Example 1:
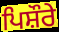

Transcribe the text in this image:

ਪਿਸ਼ੌਰੇ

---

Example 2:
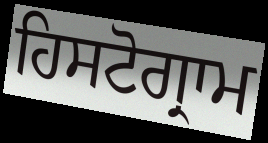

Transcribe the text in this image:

ਹਿਸਟੋਗ੍ਰਾਮ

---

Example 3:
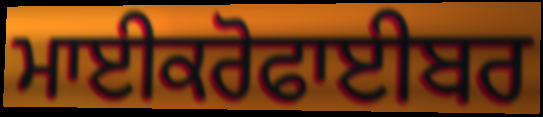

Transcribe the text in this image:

ਮਾਈਕਰੋਫਾਈਬਰ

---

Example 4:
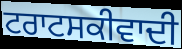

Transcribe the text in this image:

ਟਰਾਟਸਕੀਵਾਦੀ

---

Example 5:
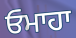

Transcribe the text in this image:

ਓਮਾਹਾ